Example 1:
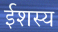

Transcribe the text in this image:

ईशस्य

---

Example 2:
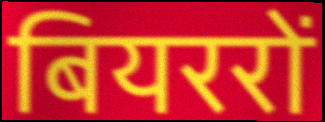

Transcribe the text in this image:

बियररों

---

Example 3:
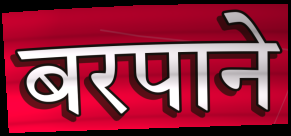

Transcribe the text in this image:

बरपाने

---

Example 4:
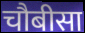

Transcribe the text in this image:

चौबीसा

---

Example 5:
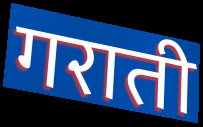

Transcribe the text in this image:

गराती